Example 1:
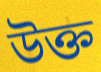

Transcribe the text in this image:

উক্ত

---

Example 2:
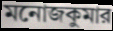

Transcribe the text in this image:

মনোজকুমার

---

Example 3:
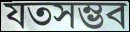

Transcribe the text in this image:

যতসম্ভব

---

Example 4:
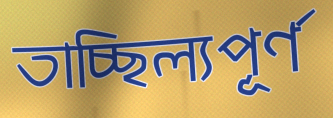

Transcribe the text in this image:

তাচ্ছিল্যপূর্ণ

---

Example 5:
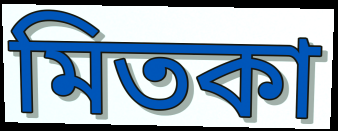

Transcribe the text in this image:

মিতকা